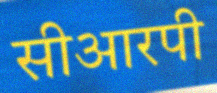
सीआरपी